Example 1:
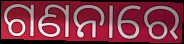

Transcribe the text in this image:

ଗଣନାରେ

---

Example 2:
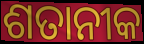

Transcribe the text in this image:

ଶତାନୀକ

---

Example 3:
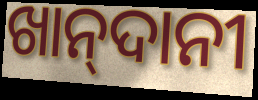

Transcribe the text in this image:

ଖାନ୍‍ଦାନୀ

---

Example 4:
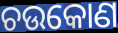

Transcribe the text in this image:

ଚଉକୋଣ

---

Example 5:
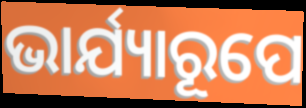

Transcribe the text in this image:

ଭାର୍ଯ୍ୟାରୂପେ